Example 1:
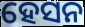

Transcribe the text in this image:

ହେସନ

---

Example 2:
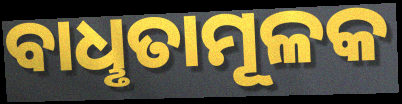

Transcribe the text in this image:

ବାଧୢତାମୂଳକ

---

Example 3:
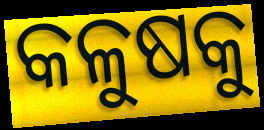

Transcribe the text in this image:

କଳୁଷକୁ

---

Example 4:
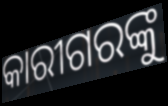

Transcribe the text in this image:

କାରୀଗରଙ୍କୁ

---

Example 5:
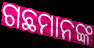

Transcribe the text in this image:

ଗଛମାନଙ୍କ